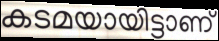
കടമയായിട്ടാണ്